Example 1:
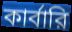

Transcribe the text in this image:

কার্বারি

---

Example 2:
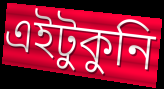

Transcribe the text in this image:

এইটুকুনি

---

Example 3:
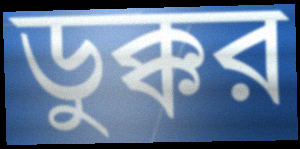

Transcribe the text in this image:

ডুক্কর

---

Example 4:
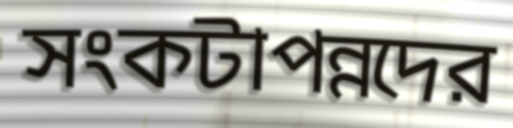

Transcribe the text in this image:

সংকটাপন্নদের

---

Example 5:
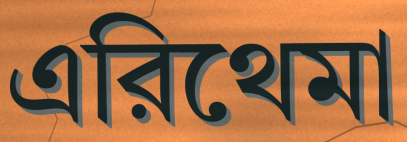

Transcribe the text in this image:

এরিথেমা